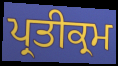
ਪ੍ਰਤੀਕ੍ਰਮ